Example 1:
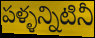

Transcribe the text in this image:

పళ్ళన్నిటినీ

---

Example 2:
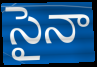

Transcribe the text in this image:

సైనా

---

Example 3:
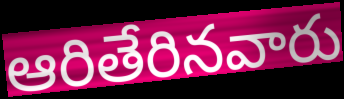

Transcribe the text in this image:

ఆరితేరినవారు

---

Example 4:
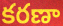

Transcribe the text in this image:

కరణా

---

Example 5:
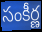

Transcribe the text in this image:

సంకీర్ణ